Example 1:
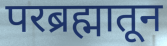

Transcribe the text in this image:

परब्रह्मातून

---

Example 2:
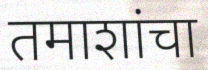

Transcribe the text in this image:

तमाशांचा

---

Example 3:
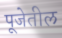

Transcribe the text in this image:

पूजेतील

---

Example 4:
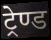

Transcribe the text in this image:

ट्रेण्ड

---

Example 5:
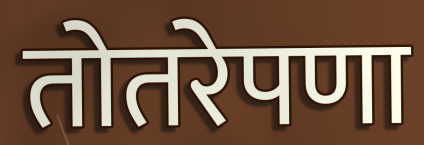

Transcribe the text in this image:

तोतरेपणा